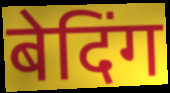
बेदिंग